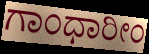
ಗಾಂಧಾರೀಂ